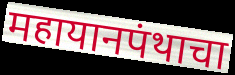
महायानपंथाचा